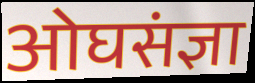
ओघसंज्ञा